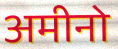
अमीनो